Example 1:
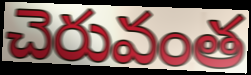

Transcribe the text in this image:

చెరువంత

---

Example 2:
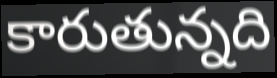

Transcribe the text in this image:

కారుతున్నది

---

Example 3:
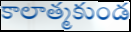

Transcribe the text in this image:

కాలాత్మకుండ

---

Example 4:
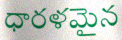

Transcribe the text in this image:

ధారళమైన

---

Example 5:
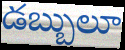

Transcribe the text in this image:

డబ్బులూ